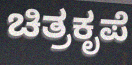
ಚಿತ್ರಕೃಪೆ